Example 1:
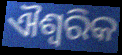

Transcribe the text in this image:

ଐଶ୍ୱରିକ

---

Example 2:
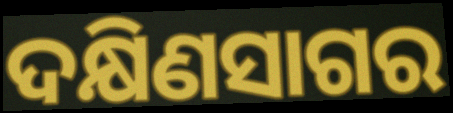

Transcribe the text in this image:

ଦକ୍ଷିଣସାଗର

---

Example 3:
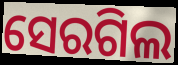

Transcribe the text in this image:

ସେରଗିଲ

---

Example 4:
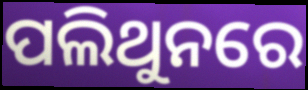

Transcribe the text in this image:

ପଲିଥୁନରେ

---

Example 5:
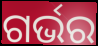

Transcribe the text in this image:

ଗର୍ଭର